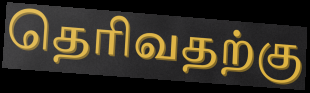
தெரிவதற்கு